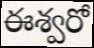
ఈశ్వరో